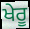
ਖੇਰੂ